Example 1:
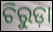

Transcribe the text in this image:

ଚିରୁଡ଼ା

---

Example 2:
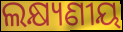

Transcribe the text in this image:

ଲକ୍ଷ୍ୟଣୀୟ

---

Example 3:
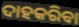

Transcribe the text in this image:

ଦାହକରିବା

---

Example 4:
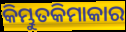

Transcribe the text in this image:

କିମ୍ଭୁତକିମାକାର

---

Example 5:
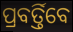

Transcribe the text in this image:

ପ୍ରବର୍ତ୍ତିବେ